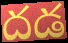
దడ